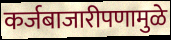
कर्जबाजारीपणामुळे